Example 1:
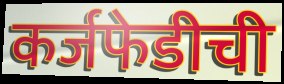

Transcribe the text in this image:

कर्जफेडीची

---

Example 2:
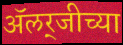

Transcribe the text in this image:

ॲलर्जीच्या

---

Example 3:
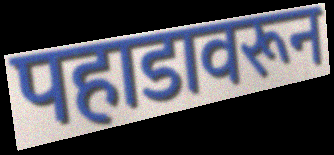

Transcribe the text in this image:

पहाडावरून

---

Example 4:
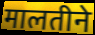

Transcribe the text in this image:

मालतीने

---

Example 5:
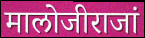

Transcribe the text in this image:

मालोजीराजां